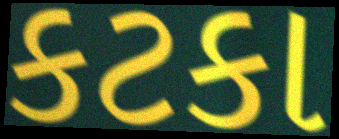
કટકા